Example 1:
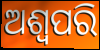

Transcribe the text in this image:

ଅଶ୍ୱପରି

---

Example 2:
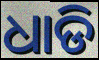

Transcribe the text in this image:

ଧାଡି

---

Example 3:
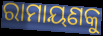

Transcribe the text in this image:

ରାମାୟଣକୁ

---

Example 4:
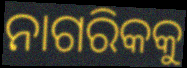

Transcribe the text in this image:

ନାଗରିକକୁ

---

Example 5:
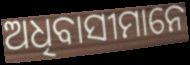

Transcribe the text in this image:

ଅଧିବାସୀମାନେ